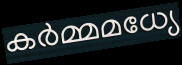
കർമ്മമധ്യേ